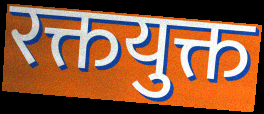
रक्तयुक्त